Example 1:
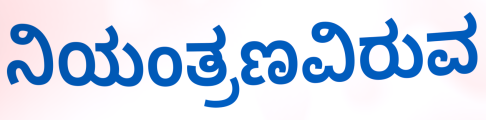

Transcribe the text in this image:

ನಿಯಂತ್ರಣವಿರುವ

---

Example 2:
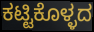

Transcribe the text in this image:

ಕಟ್ಟಿಕೊಳ್ಳದ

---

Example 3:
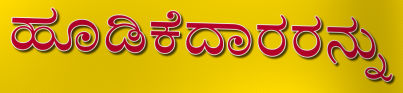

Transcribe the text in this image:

ಹೂಡಿಕೆದಾರರನ್ನು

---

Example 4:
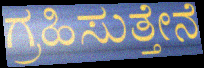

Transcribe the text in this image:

ಗ್ರಹಿಸುತ್ತೇನೆ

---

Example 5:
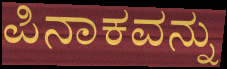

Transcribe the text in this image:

ಪಿನಾಕವನ್ನು